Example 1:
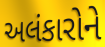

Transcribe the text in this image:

અલંકારોને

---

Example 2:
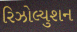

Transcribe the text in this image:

રિઝોલ્યુશન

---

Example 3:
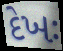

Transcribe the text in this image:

દેખઃ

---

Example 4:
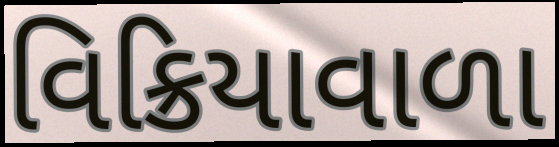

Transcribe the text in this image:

વિક્રિયાવાળા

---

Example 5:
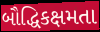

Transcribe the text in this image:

બૌદ્ધિકક્ષમતા